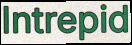
Intrepid